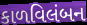
કાળવિલંબન